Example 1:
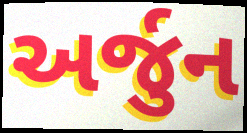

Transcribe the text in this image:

અર્જુન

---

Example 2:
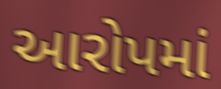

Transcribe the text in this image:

આરોપમાં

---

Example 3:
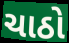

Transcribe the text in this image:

ચાઠો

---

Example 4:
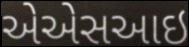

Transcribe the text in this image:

એએસઆઇ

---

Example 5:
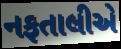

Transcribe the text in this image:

નફતાલીએ